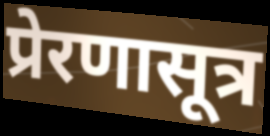
प्रेरणासूत्र